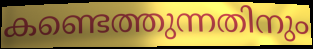
കണ്ടെത്തുന്നതിനും